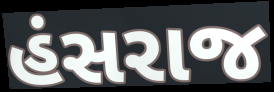
હંસરાજ